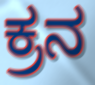
ಕ್ರನ